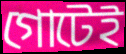
গোটেই